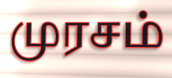
முரசம்